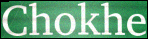
Chokhe